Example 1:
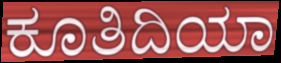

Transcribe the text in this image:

ಕೂತಿದಿಯಾ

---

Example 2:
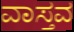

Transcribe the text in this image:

ವಾಸ್ತವ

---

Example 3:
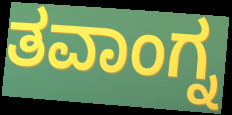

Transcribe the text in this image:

ತವಾಂಗ್ನ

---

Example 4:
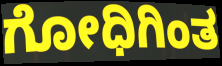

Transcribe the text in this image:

ಗೋಧಿಗಿಂತ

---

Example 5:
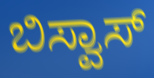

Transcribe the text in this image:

ಬಿಸ್ವಾಸ್